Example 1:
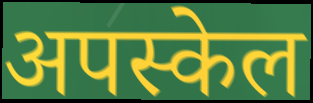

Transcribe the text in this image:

अपस्केल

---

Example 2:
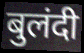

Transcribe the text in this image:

बुलंदी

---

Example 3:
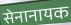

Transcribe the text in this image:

सेनानायक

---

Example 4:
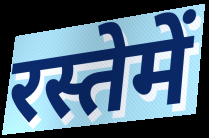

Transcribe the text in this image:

रस्तेमें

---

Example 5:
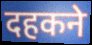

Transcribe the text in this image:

दहकने